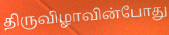
திருவிழாவின்போது